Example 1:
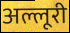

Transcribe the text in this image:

अल्लूरी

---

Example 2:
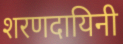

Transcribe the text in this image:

शरणदायिनी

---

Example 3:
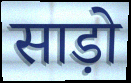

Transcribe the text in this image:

साड़ो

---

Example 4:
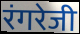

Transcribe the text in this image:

रंगरेजी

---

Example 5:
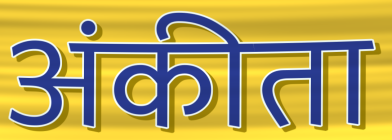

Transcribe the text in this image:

अंकीता